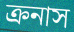
ক্রনাস